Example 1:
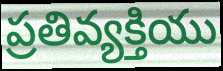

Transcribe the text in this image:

ప్రతివ్యక్తియు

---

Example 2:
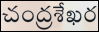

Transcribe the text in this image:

చంద్రశేఖర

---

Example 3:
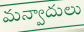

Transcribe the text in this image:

మన్వాదులు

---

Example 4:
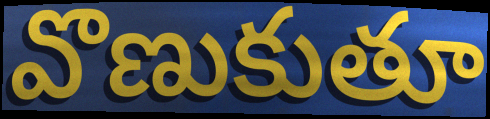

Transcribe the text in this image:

వొణుకుతూ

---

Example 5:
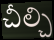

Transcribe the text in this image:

చీల్చి